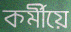
কৰ্মীয়ে